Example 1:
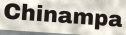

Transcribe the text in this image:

Chinampa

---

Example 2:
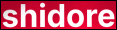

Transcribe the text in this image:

shidore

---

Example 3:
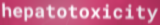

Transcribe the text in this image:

hepatotoxicity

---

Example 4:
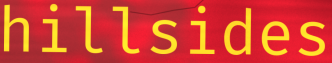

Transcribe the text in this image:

hillsides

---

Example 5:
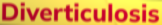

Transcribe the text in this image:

Diverticulosis